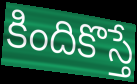
కిందికొస్తే